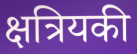
क्षत्रियकी